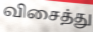
விசைத்து